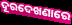
ଦୂରଦେଖଣାରେ